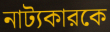
নাট্যকারকে